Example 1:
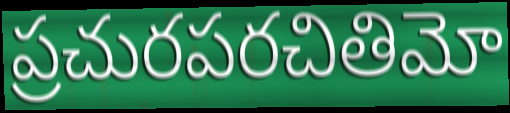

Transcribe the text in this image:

ప్రచురపరచితిమో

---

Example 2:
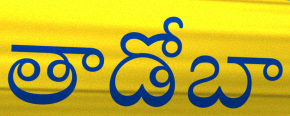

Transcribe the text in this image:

తాడోబా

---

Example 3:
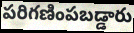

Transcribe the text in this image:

పరిగణింపబడ్డారు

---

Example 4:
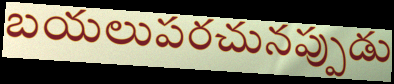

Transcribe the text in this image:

బయలుపరచునప్పుడు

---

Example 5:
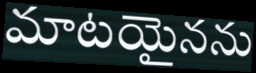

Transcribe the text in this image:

మాటయైనను